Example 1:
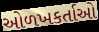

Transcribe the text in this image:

ઓળખકર્તાઓ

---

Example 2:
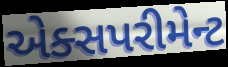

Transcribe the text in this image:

એક્સપરીમેન્ટ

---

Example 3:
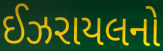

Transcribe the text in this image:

ઈઝરાયલનો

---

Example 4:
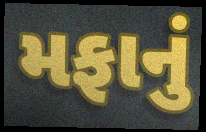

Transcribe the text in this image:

મફાનું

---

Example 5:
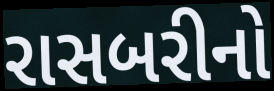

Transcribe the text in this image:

રાસબરીનો